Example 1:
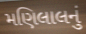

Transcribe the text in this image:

મણિલાલનું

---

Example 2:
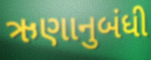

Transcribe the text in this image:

ઋણાનુબંધી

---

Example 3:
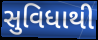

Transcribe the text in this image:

સુવિધાથી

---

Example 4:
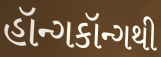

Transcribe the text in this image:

હૉન્ગકૉન્ગથી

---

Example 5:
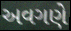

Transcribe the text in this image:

અવગણે